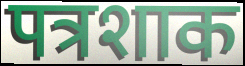
पत्रशाक